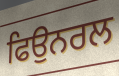
ਫਿਉਨਰਲ